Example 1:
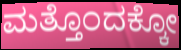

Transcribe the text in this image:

ಮತ್ತೊಂದಕ್ಕೋ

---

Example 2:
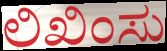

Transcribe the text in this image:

ಲಿಖಿಂಸು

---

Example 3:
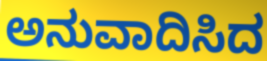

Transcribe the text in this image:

ಅನುವಾದಿಸಿದ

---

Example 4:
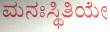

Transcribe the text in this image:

ಮನಃಸ್ಥಿತಿಯೇ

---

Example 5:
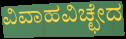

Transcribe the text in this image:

ವಿವಾಹವಿಚ್ಛೇದ